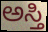
ಅಸ್ತಿ